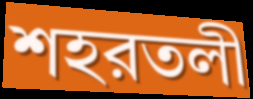
শহরতলী